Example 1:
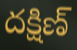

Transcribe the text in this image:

దక్షిణ్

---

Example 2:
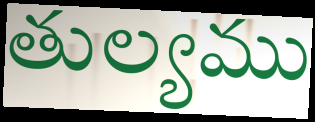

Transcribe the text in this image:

తుల్యము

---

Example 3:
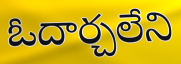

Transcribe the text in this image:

ఓదార్చలేని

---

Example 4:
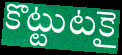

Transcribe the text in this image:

కొట్టుటకై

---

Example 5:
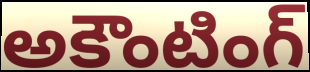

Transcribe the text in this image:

అకౌంటింగ్